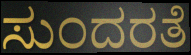
ಸುಂದರತೆ